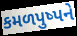
કમળપુષ્પને